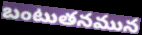
బంటుతనమున